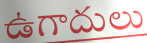
ఉగాదులు